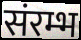
संरम्भ